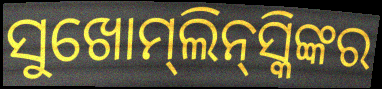
ସୁଖୋମ୍‌ଲିନ୍‌ସ୍କିଙ୍କର